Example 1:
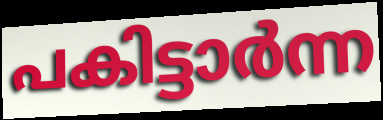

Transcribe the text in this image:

പകിട്ടാർന്ന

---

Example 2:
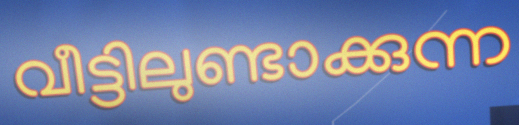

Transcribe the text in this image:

വീട്ടിലുണ്ടാക്കുന്ന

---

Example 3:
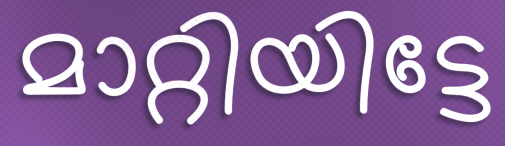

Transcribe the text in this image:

മാറ്റിയിട്ടേ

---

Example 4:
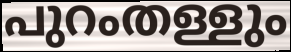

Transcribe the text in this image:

പുറംതള്ളും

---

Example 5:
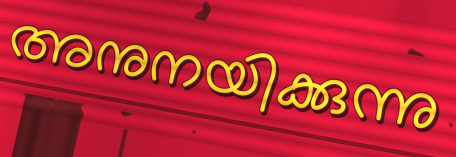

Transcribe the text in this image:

അനുനയിക്കുന്നു